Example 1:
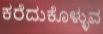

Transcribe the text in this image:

ಕರೆದುಕೊಳ್ಳುವ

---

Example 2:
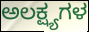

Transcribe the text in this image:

ಅಲಕ್ಷ್ಯಗಳ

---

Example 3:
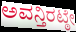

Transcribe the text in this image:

ಅವನ್ತಿರಟ್ಠೇ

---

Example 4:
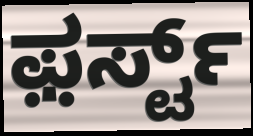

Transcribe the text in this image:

ಫ಼ರ್ಸ್ಟ್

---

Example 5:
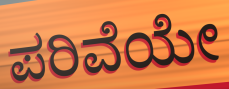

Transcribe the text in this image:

ಪರಿವೆಯೇ